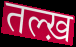
तल्ख़